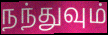
நந்துவும்